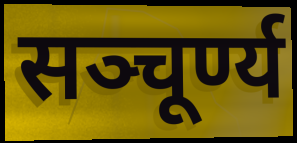
सञ्चूर्ण्य